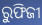
ରୁଫିଜୀ